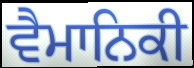
ਵੈਮਾਨਿਕੀ